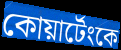
কোয়ার্টেংকে